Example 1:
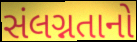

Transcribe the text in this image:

સંલગ્નતાનો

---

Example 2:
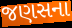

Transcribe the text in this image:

જણસના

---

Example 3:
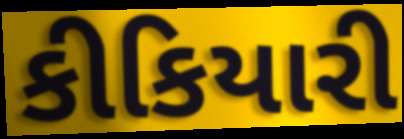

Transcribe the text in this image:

કીકિયારી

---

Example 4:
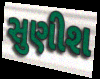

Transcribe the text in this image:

સુણીશ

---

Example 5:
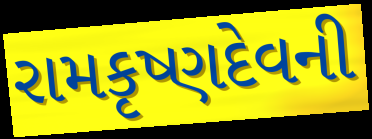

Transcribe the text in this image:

રામકૃષ્ણદેવની